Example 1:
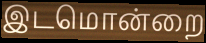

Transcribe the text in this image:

இடமொன்றை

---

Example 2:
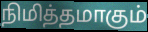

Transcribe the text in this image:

நிமித்தமாகும்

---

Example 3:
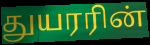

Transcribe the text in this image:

துயரரின்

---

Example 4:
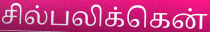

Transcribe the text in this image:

சில்பலிக்கென்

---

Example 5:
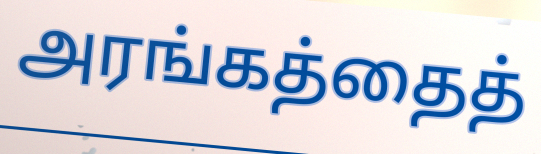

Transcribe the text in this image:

அரங்கத்தைத்